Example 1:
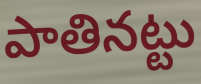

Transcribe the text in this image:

పాతినట్టు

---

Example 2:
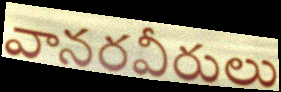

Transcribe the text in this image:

వానరవీరులు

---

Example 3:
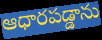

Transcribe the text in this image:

ఆధారపడ్డాను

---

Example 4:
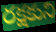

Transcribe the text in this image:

రక్షకుని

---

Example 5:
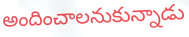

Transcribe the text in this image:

అందించాలనుకున్నాడు